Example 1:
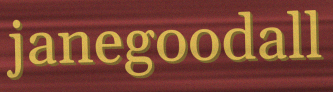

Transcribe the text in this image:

janegoodall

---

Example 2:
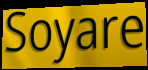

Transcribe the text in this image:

Soyare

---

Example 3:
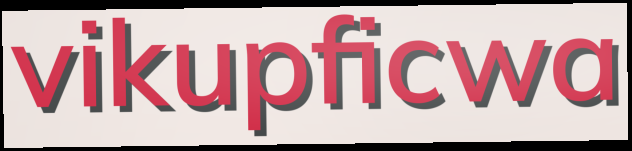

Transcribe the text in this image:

vikupficwa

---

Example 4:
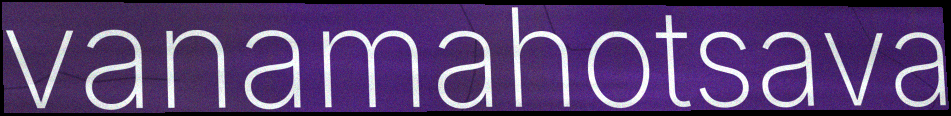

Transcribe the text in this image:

vanamahotsava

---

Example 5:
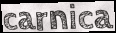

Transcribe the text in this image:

carnica